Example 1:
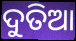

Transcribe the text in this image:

ଦୁତିଆ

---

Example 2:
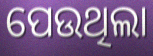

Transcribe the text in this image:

ପେଉଥିଲା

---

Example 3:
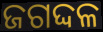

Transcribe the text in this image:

ଜଗଦ୍ଦଳ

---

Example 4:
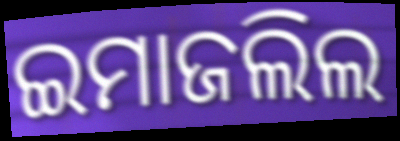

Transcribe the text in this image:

ଇମାଜଲିଲ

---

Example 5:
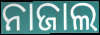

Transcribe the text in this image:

ନାଜାଲ